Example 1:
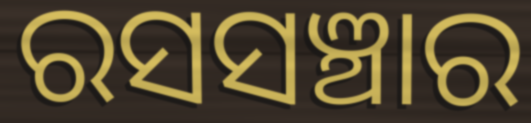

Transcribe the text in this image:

ରସସଞ୍ଚାର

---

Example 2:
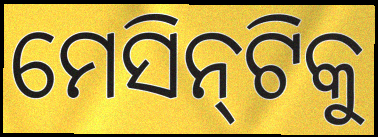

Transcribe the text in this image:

ମେସିନ୍‍ଟିକୁ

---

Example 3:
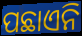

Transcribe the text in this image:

ପଛାଏନି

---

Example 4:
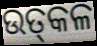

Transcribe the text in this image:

ଉତ୍‌କଳ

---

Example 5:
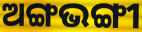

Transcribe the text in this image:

ଅଙ୍ଗଭଙ୍ଗୀ